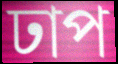
ঢাপ